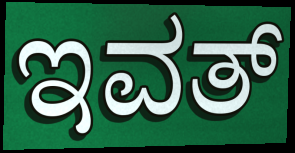
ಇವತ್